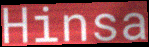
Hinsa